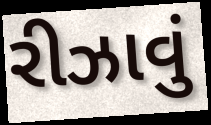
રીઝાવું